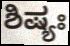
ಶಿಷ್ಯಃ